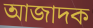
আজাদক